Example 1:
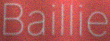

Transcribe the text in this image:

Baillie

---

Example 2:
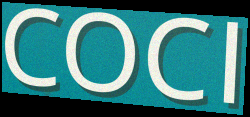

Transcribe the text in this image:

COCI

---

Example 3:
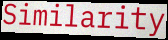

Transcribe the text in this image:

Similarity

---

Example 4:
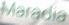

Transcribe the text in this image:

Maradia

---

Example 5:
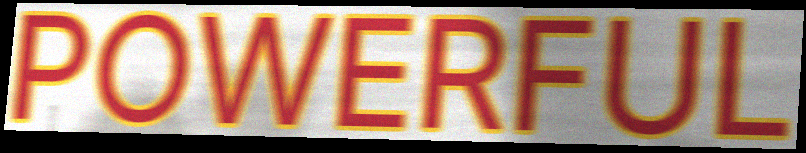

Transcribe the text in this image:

POWERFUL